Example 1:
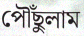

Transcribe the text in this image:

পৌঁছুলাম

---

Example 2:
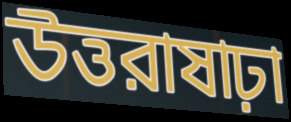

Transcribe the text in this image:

উত্তরাষাঢ়া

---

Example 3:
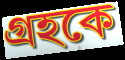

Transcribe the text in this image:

গ্রহকে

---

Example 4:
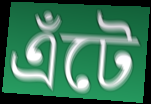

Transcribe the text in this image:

এঁটে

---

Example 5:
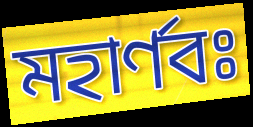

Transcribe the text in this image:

মহার্ণবঃ